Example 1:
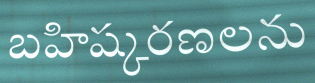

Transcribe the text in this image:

బహిష్కరణలను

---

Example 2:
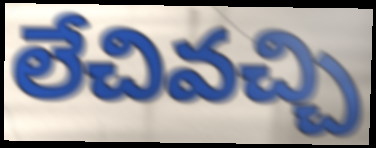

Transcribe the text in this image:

లేచివచ్చి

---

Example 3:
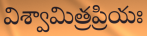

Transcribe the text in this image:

విశ్వామిత్రప్రియః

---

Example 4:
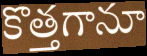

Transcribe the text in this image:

కొత్తగానూ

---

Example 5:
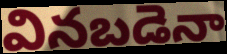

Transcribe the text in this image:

వినబడెనా